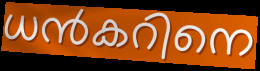
ധൻകറിനെ